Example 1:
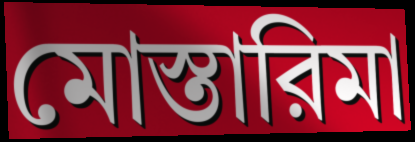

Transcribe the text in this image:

মোস্তারিমা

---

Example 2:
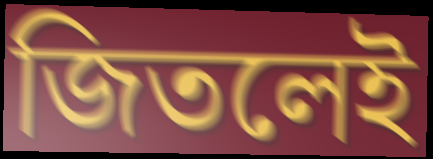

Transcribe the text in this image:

জিতলেই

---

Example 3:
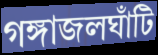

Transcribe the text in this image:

গঙ্গাজলঘাঁটি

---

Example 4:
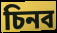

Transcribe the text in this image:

চিনব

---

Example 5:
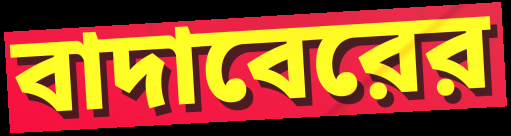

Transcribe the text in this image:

বাদাবেরের